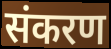
संकरण